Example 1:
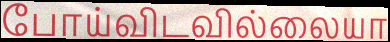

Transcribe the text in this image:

போய்விடவில்லையா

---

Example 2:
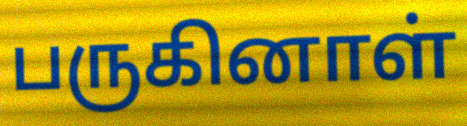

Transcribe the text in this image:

பருகினாள்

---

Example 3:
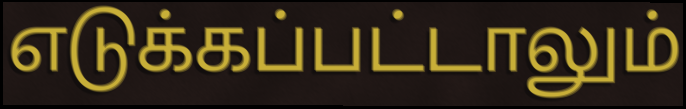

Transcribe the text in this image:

எடுக்கப்பட்டாலும்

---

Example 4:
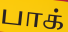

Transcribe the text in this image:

பாக்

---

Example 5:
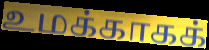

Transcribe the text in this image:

உமக்காகக்